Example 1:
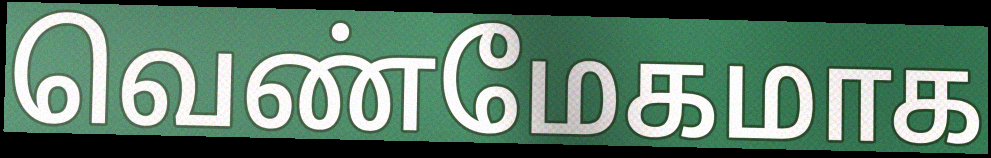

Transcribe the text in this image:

வெண்மேகமாக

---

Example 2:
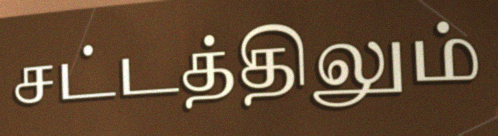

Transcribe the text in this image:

சட்டத்திலும்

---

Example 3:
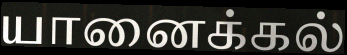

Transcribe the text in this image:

யானைக்கல்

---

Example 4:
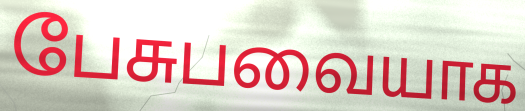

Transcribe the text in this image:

பேசுபவையாக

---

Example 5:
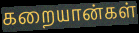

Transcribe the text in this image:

கறையான்கள்